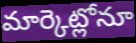
మార్కెట్లోనూ